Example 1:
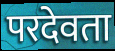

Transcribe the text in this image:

परदेवता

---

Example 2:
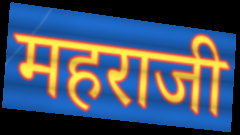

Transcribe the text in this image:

महराजी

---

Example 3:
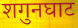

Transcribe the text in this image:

शगुनघाट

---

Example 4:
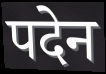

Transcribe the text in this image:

पदेन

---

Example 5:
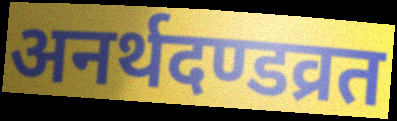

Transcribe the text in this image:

अनर्थदण्डव्रत